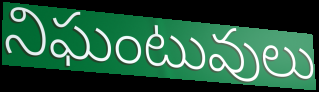
నిఘంటువులు